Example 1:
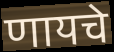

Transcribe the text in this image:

णायचे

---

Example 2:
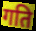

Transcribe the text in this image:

गति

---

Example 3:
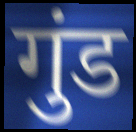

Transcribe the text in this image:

गुंड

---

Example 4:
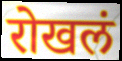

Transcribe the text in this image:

रोखलं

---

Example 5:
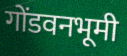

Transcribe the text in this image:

गोंडवनभूमी